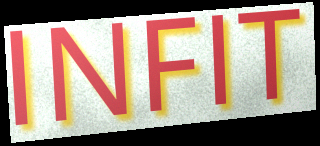
INFIT